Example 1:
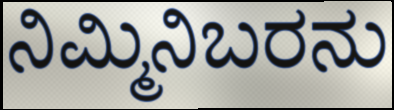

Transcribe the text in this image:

ನಿಮ್ಮಿನಿಬರನು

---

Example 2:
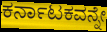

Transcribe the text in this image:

ಕರ್ನಾಟಕವನ್ನೇ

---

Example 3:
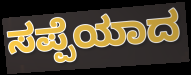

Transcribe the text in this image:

ಸಪ್ಪೆಯಾದ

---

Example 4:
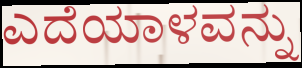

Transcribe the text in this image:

ಎದೆಯಾಳವನ್ನು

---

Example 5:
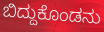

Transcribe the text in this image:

ಬಿದ್ದುಕೊಂಡನು